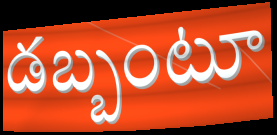
డబ్బంటూ